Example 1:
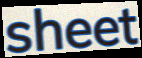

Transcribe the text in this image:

sheet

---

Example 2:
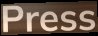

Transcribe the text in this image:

Press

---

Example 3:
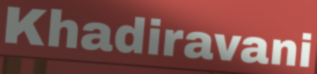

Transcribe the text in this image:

Khadiravani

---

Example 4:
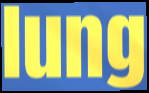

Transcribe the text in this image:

lung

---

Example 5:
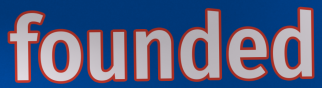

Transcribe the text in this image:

founded